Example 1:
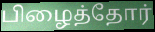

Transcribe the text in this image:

பிழைத்தோர்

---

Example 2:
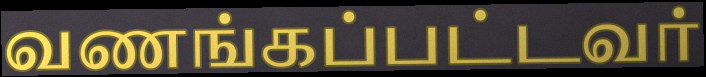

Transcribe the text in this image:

வணங்கப்பட்டவர்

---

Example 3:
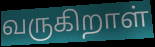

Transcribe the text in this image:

வருகிறாள்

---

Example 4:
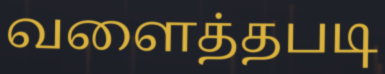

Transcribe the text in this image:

வளைத்தபடி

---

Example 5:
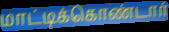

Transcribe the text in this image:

மாட்டிக்கொண்டார்